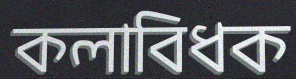
কলাবিধক